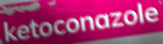
ketoconazole